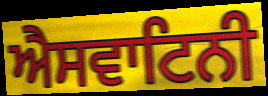
ਐਸਵਾਟਿਨੀ